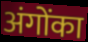
अंगोंका